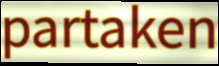
partaken